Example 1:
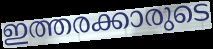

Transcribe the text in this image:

ഇത്തരക്കാരുടെ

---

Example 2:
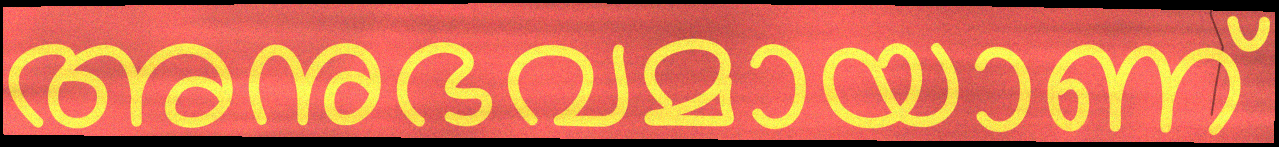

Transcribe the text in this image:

അനുഭവമായാണ്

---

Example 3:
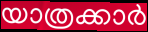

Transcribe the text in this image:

യാത്രക്കാർ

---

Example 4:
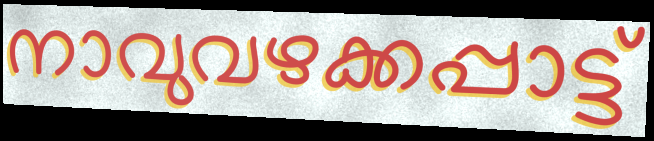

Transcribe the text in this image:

നാവുവഴക്കപ്പാട്ട്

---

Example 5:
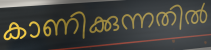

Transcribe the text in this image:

കാണിക്കുന്നതിൽ